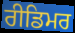
ਰੀਡਿਮਰ